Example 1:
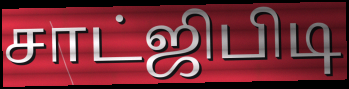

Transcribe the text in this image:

சாட்ஜிபிடி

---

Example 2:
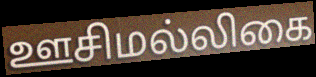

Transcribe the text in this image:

ஊசிமல்லிகை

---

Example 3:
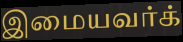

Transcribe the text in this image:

இமையவர்க்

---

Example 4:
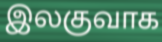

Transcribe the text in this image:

இலகுவாக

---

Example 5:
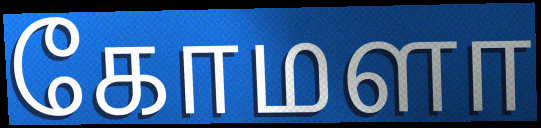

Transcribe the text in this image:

கோமளா